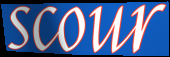
scour